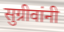
सुग्रीवांनी